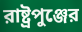
রাষ্ট্রপুঞ্জের